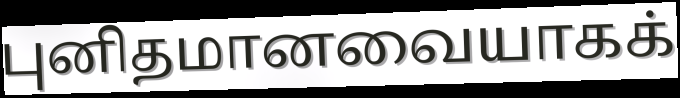
புனிதமானவையாகக்